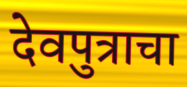
देवपुत्राचा